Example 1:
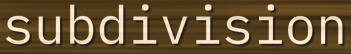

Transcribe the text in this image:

subdivision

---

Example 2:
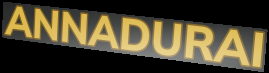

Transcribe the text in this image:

ANNADURAI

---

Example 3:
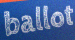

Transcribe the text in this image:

ballot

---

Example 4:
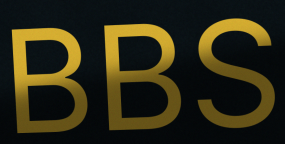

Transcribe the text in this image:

BBS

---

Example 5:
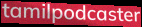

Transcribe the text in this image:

tamilpodcaster